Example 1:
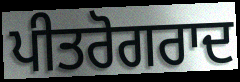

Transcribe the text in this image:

ਪੀਤਰੋਗਰਾਦ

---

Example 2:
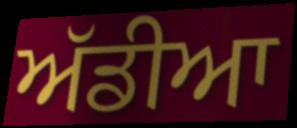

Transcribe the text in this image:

ਅੱਡੀਆ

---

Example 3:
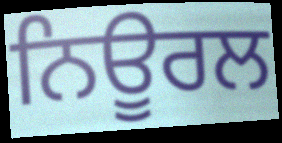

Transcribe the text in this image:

ਨਿਊਰਲ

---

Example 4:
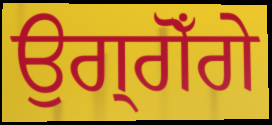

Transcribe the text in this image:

ਉਗ੍ਗੋਁਗੇ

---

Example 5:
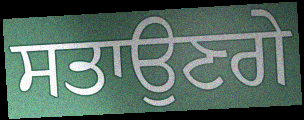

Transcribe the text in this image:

ਸਤਾਉਣਗੇ